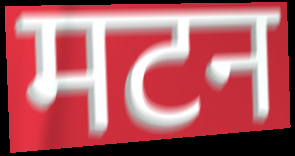
मटन